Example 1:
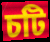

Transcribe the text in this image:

চটি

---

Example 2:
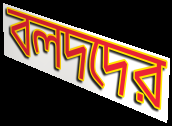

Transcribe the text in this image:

বলদদের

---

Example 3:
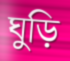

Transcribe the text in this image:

ঘুড়ি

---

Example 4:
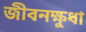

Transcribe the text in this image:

জীবনক্ষুধা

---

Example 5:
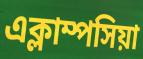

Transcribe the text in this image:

এক্লাম্পসিয়া